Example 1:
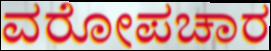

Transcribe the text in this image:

ವರೋಪಚಾರ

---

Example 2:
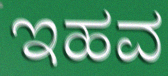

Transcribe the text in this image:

ಇಹವ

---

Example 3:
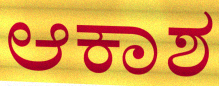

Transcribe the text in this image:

ಆಕಾಶ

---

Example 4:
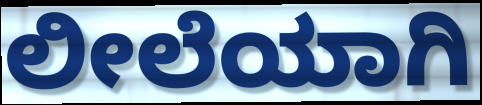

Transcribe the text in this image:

ಲೀಲೆಯಾಗಿ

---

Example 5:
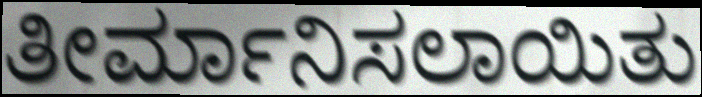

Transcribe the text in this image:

ತೀರ್ಮಾನಿಸಲಾಯಿತು